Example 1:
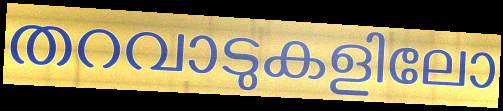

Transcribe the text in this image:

തറവാടുകളിലോ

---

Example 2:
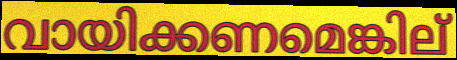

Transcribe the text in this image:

വായിക്കണമെങ്കില്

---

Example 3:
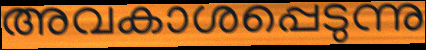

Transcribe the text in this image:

അവകാശപ്പെടുന്നു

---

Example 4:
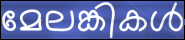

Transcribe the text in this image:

മേലങ്കികൾ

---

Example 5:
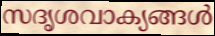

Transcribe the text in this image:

സദൃശവാക്യങ്ങൾ